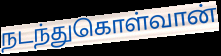
நடந்துகொள்வான்